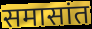
समासांत